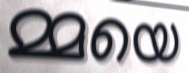
മ്മയെ